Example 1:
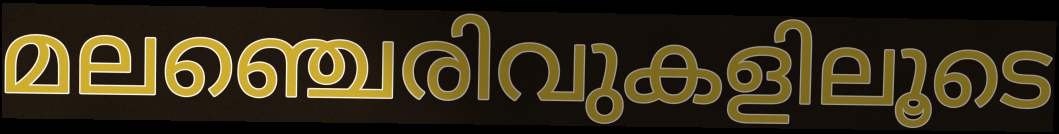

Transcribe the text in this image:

മലഞ്ചെരിവുകളിലൂടെ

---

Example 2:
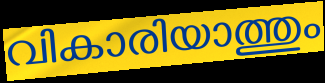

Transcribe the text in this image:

വികാരിയാത്തും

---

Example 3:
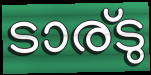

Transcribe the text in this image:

ടാര്ടു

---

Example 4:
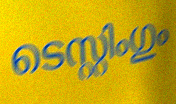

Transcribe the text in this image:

ടെസ്റ്റിംഗും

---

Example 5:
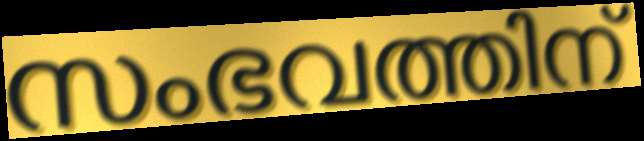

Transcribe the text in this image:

സംഭവത്തിന്